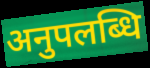
अनुपलब्धि